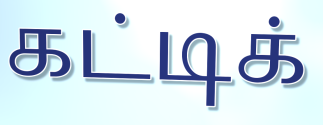
கட்டிக்